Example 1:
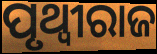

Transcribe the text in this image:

ପୃଥ୍ୱୀରାଜ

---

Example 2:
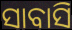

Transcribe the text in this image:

ସାବାସି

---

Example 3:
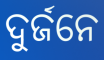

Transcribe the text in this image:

ଦୁର୍ଜନେ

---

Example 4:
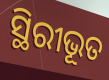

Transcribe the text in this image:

ସ୍ଥିରୀଭୂତ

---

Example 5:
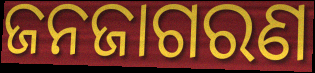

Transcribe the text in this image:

ଜନଜାଗରଣ